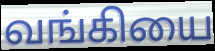
வங்கியை